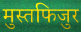
मुस्तफिजुर